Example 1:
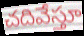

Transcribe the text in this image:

చదివేస్తూ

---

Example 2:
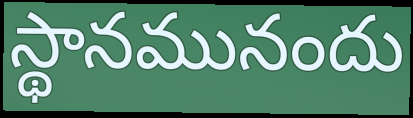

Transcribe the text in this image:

స్థానమునందు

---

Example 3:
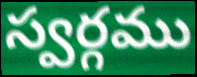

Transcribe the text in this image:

స్వర్గము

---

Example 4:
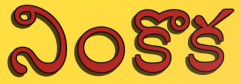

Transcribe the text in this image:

నింకొక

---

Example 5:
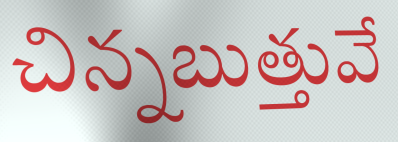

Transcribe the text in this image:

చిన్నబుత్తువే